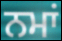
ਨਮਾਂ